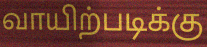
வாயிற்படிக்கு